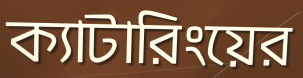
ক্যাটারিংয়ের